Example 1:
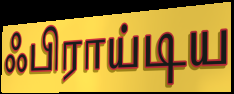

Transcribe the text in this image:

ஃபிராய்டிய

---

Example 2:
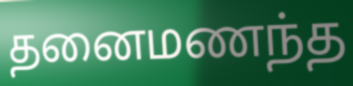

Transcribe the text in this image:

தனைமணந்த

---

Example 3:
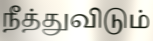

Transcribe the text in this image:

நீத்துவிடும்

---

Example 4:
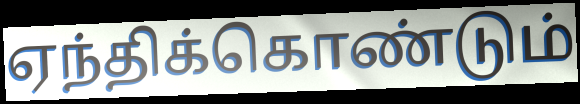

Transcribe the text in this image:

ஏந்திக்கொண்டும்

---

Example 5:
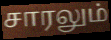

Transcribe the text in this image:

சாரலும்